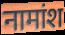
नामांश